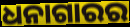
ଧନାଗାରର